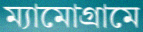
ম্যামোগ্রামে